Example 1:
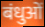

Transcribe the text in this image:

बंधुओं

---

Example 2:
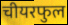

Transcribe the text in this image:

चीयरफुल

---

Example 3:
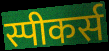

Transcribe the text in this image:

स्पीकर्स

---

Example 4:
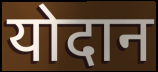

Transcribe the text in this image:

योदान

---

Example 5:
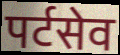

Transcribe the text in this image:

पर्टसेव